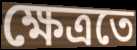
ক্ষেত্ৰতে